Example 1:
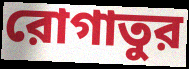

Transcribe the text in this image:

রোগাতুর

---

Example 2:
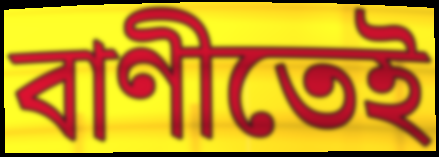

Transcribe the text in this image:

বাণীতেই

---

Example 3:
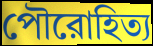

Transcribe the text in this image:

পৌরোহিত্য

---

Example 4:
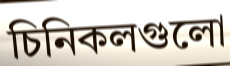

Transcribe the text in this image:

চিনিকলগুলো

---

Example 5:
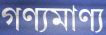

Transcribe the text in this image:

গণ্যমাণ্য